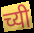
च्यी